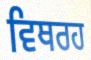
ਵਿਥਰਹ